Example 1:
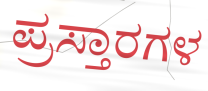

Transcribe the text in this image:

ಪ್ರಸ್ತಾರಗಳ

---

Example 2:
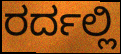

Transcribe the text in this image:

ರರ್ದಲ್ಲಿ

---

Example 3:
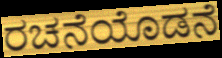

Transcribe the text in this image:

ರಚನೆಯೊಡನೆ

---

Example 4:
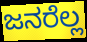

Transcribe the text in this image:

ಜನರೆಲ್ಲ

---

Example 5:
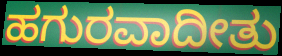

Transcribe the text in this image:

ಹಗುರವಾದೀತು